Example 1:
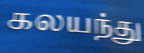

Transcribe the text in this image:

கலயந்து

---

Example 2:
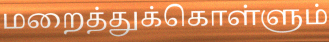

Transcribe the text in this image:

மறைத்துக்கொள்ளும்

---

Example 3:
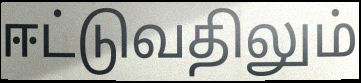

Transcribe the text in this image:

ஈட்டுவதிலும்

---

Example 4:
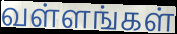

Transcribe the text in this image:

வள்ளங்கள்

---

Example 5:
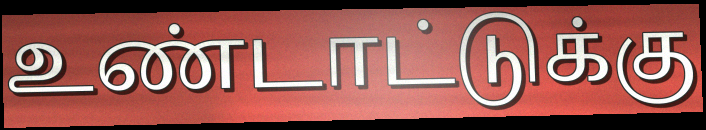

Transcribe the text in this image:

உண்டாட்டுக்கு